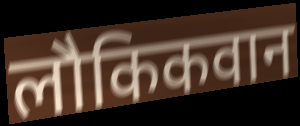
लौकिकवान